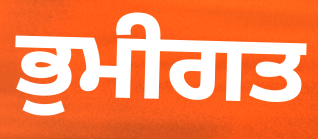
ਭੁਮੀਗਤ